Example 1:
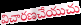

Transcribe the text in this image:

విచారణచేయుచు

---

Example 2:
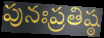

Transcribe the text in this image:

పునఃప్రతిష్ఠ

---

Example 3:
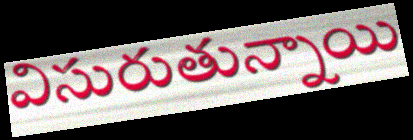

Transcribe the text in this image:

విసురుతున్నాయి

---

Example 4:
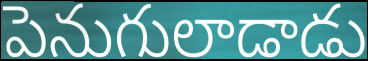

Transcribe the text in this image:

పెనుగులాడాడు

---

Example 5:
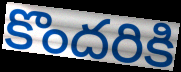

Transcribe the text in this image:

కొందరికి